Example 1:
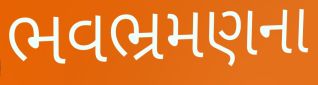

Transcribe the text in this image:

ભવભ્રમણના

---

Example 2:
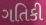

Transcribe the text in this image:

ગતિકી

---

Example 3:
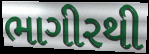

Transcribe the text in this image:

ભાગીરથી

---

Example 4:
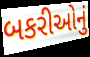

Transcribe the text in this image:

બકરીઓનું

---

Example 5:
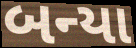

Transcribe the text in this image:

બન્યા